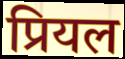
प्रियल